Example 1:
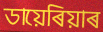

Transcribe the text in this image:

ডায়েৰিয়াৰ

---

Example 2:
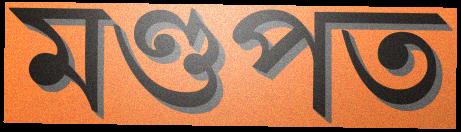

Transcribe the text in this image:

মণ্ডপত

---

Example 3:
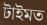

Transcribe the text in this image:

টাইমত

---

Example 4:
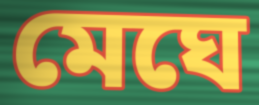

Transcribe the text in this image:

মেঘে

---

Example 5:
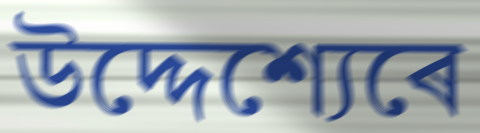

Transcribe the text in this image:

উদ্দেশ্যেৰে